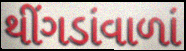
થીંગડાંવાળાં